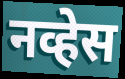
नव्हेस